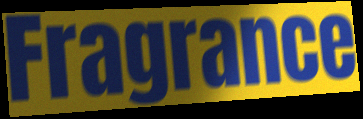
Fragrance